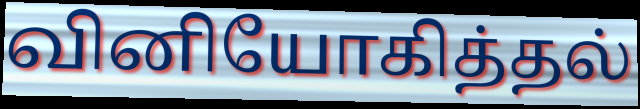
வினியோகித்தல்